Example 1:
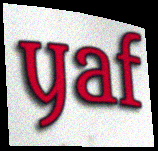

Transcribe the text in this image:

yaf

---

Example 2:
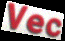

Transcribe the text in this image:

Vec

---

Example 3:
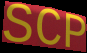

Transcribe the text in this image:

SCP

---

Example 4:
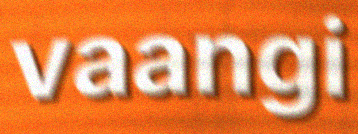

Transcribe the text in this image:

vaangi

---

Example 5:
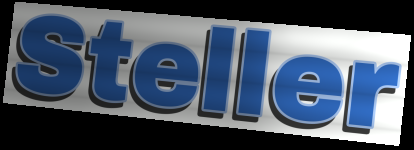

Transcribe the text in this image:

Steller